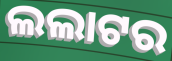
ଲଲାଟର